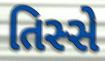
તિસ્સે